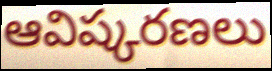
ఆవిష్కరణలు